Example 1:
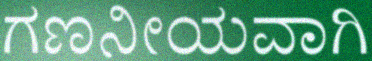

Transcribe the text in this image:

ಗಣನೀಯವಾಗಿ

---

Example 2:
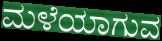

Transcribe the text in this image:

ಮಳೆಯಾಗುವ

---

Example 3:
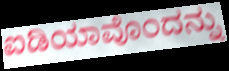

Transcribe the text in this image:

ಐಡಿಯಾವೊಂದನ್ನು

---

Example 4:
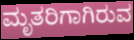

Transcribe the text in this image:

ಮೃತರಿಗಾಗಿರುವ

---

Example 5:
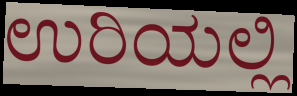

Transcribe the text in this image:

ಉರಿಯಲ್ಲಿ